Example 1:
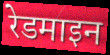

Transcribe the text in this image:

रेडमाइन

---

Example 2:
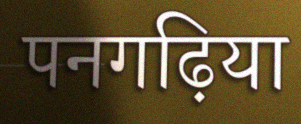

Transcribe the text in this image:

पनगढ़िया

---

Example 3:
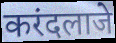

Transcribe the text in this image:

करंदलाजे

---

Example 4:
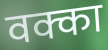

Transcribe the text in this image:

वक्का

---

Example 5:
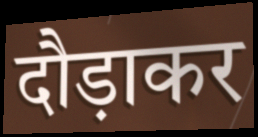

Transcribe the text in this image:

दौड़ाकर